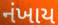
નંખાય